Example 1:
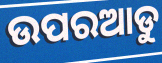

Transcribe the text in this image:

ଉପରଆଡୁ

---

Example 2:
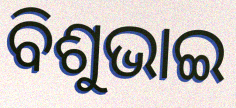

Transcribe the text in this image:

ବିଶୁଭାଇ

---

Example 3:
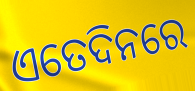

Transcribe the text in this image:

ଏତେଦିନରେ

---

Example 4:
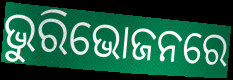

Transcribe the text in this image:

ଭୁରିଭୋଜନରେ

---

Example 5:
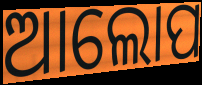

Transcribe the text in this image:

ଆଲୋପ